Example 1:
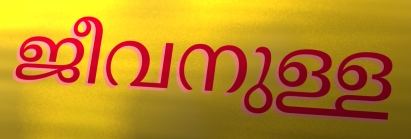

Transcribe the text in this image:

ജീവനുള്ള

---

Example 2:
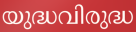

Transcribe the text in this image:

യുദ്ധവിരുദ്ധ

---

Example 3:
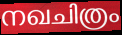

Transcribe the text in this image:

നഖചിത്രം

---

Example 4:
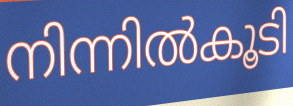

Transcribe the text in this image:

നിന്നിൽകൂടി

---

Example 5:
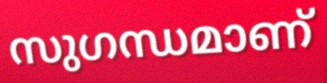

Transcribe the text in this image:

സുഗന്ധമാണ്